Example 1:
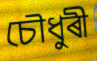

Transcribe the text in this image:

চৌধুৰী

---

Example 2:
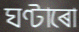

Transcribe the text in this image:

ঘণ্টাৰো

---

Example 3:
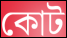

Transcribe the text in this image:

কোট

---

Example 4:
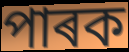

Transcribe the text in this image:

পাৰক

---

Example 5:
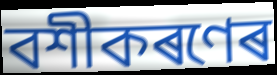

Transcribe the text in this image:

বশীকৰণেৰ